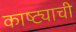
काष्ट्याची